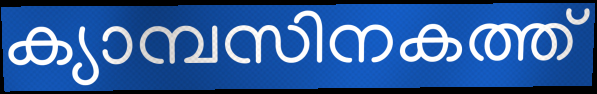
ക്യാമ്പസിനകത്ത്